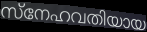
സ്നേഹവതിയായ